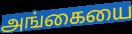
அங்கையை